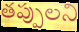
తప్పులని